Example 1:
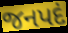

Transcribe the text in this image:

જનપદં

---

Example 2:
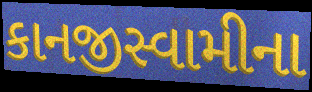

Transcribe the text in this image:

કાનજીસ્વામીના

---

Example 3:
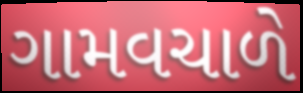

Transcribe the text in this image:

ગામવચાળે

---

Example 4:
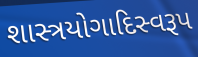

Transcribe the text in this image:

શાસ્ત્રયોગાદિસ્વરૂપ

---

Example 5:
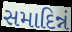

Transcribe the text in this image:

સમાદિન્નં